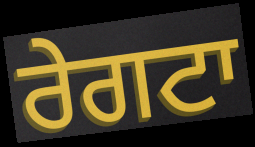
ਰੇਗਟਾ